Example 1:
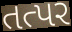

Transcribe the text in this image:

તત્પર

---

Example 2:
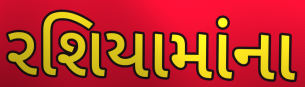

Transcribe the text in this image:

રશિયામાંના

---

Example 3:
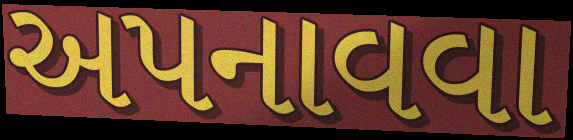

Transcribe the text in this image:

અપનાવવા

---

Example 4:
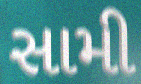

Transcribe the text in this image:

સામી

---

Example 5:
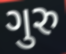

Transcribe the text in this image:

ગુરુ